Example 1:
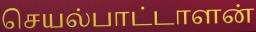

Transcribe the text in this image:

செயல்பாட்டாளன்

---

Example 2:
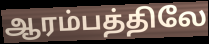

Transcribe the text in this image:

ஆரம்பத்திலே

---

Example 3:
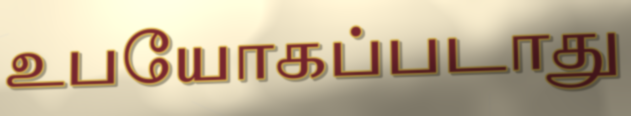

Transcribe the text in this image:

உபயோகப்படாது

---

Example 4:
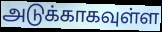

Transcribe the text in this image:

அடுக்காகவுள்ள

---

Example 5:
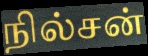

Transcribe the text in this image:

நில்சன்